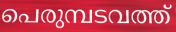
പെരുമ്പടവത്ത്